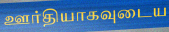
ஊர்தியாகவுடைய